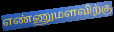
எண்ணுமளவிற்கு